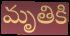
మృతికి